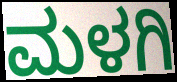
ಮಳಗಿ